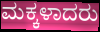
ಮಕ್ಕಳಾದರು